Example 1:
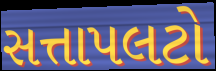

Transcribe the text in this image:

સત્તાપલટો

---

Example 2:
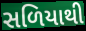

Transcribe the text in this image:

સળિયાથી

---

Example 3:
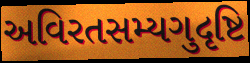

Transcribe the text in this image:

અવિરતસમ્યગુદૃષ્ટિ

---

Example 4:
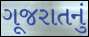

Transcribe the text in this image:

ગૂજરાતનું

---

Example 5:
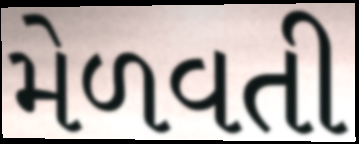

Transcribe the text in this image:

મેળવતી